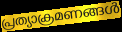
പ്രത്യാക്രമണങ്ങൾ